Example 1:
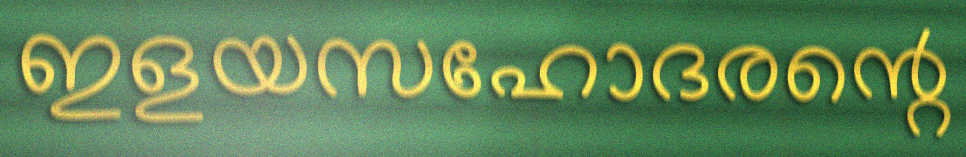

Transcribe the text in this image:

ഇളയസഹോദരന്റെ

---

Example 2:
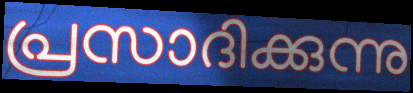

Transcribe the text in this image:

പ്രസാദിക്കുന്നു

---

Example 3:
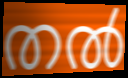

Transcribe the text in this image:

തൽ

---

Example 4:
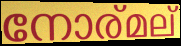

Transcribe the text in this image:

നോര്മല്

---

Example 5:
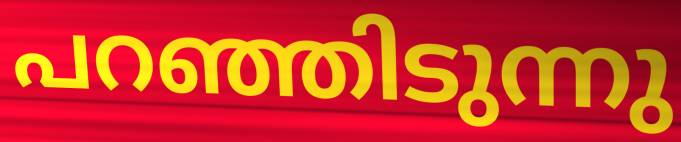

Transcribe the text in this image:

പറഞ്ഞിടുന്നു